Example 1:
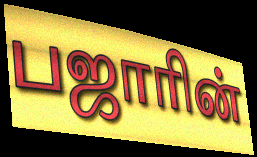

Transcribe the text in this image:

பஜாரின்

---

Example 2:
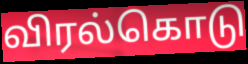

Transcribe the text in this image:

விரல்கொடு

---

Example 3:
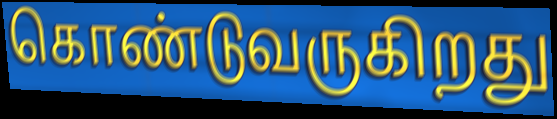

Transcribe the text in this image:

கொண்டுவருகிறது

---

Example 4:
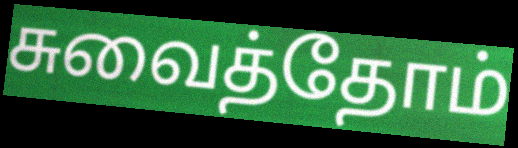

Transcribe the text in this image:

சுவைத்தோம்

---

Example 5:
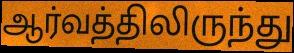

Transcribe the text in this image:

ஆர்வத்திலிருந்து